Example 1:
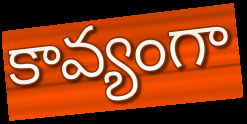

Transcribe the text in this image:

కావ్యంగా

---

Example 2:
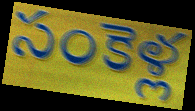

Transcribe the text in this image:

సంకెళ్ల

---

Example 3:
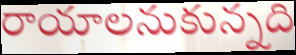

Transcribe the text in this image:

రాయాలనుకున్నది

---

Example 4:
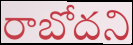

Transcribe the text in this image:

రాబోదని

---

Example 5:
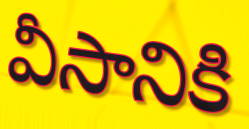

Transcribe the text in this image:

వీసానికి